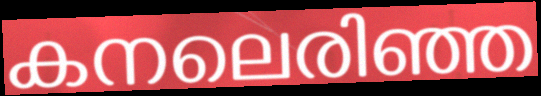
കനലെരിഞ്ഞ